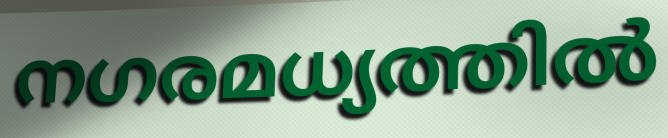
നഗരമധ്യത്തിൽ